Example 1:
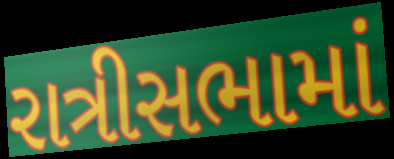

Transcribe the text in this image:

રાત્રીસભામાં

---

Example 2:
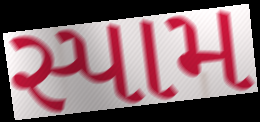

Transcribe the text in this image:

સ્પામ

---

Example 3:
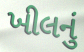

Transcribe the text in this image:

ખીલનું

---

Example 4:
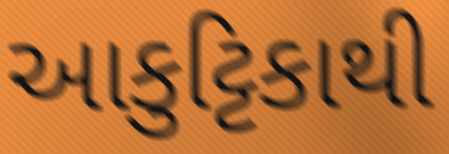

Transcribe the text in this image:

આકુટ્ટિકાથી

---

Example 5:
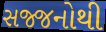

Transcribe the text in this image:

સજ્જનોથી